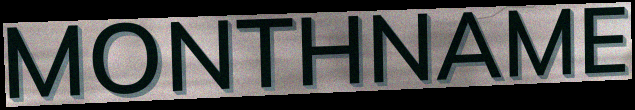
MONTHNAME